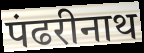
पंढरीनाथ